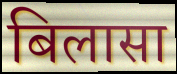
बिलासा